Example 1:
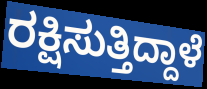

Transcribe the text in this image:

ರಕ್ಷಿಸುತ್ತಿದ್ದಾಳೆ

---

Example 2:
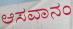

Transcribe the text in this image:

ಆಸವಾನಂ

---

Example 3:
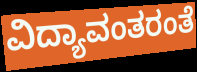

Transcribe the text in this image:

ವಿದ್ಯಾವಂತರಂತೆ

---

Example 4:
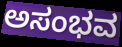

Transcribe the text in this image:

ಅಸಂಭವ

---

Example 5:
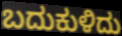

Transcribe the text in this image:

ಬದುಕುಳಿದು